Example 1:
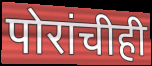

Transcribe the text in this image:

पोरांचीही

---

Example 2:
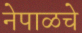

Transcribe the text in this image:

नेपाळचे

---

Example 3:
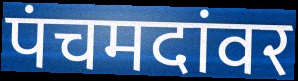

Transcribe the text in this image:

पंचमदांवर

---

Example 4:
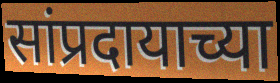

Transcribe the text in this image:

सांप्रदायाच्या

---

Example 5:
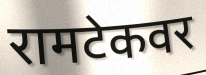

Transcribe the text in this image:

रामटेकवर